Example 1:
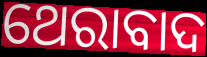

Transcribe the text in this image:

ଥେରାବାଦ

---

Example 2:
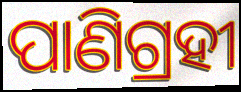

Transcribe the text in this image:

ପାଣିଗ୍ରହୀ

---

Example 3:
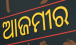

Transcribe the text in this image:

ଆଜମୀର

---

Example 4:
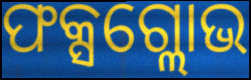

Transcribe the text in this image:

ଫକ୍ସଗ୍ଲୋଭ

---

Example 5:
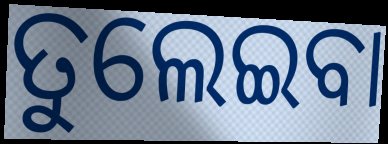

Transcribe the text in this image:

ତୁଲେଇବା